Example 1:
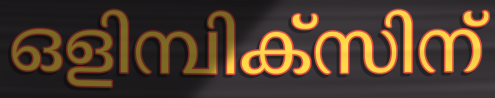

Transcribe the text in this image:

ഒളിമ്പിക്സിന്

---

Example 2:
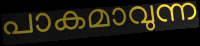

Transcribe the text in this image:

പാകമാവുന്ന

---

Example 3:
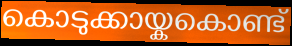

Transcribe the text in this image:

കൊടുക്കായ്കകൊണ്ട്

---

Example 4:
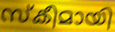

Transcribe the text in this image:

സ്കീമായി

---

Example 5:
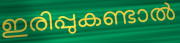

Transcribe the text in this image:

ഇരിപ്പുകണ്ടാൽ